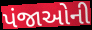
પંજાઓની